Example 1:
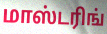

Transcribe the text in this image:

மாஸ்டரிங்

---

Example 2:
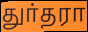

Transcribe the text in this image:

துர்தரா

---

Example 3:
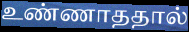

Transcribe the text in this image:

உண்ணாததால்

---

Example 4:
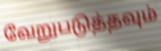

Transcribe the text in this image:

வேறுபடுத்தவும்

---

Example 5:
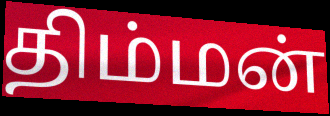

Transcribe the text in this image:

திம்மன்